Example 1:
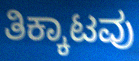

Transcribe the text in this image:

ತಿಕ್ಕಾಟವು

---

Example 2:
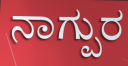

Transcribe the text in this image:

ನಾಗ್ಪುರ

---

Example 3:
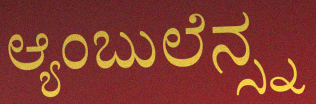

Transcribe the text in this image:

ಆ್ಯಂಬುಲೆನ್ಸ್ನ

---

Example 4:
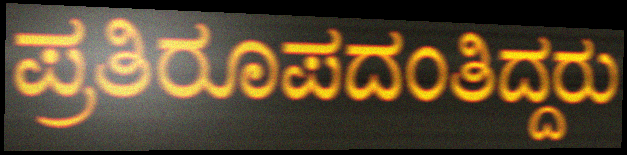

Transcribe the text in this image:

ಪ್ರತಿರೂಪದಂತಿದ್ದರು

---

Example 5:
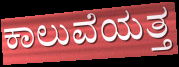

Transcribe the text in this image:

ಕಾಲುವೆಯತ್ತ